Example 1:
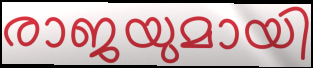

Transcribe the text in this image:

രാജയുമായി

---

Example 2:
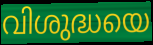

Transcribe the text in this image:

വിശുദ്ധയെ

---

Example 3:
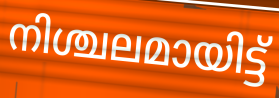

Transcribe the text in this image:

നിശ്ചലമായിട്ട്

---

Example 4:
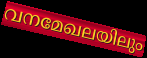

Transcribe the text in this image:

വനമേഖലയിലും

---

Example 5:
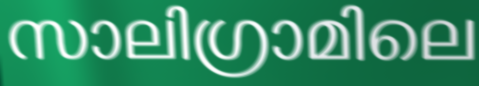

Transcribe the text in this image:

സാലിഗ്രാമിലെ